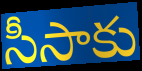
సీసాకు